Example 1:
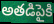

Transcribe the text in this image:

అతడిపైకి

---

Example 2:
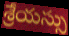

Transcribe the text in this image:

శ్రేయస్సు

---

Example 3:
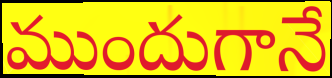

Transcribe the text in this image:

ముందుగానే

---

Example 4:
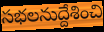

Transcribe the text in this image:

సభలనుద్దేశించి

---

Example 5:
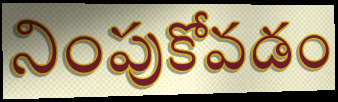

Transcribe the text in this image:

నింపుకోవడం